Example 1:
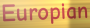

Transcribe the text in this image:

Europian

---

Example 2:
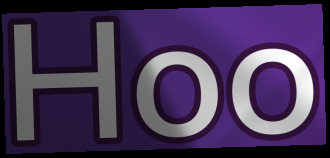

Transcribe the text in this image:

Hoo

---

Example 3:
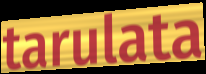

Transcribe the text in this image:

tarulata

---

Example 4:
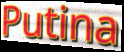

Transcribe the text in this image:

Putina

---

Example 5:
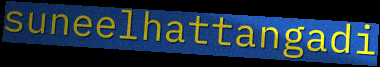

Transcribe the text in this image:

suneelhattangadi